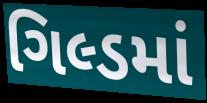
ગિલ્ડમાં